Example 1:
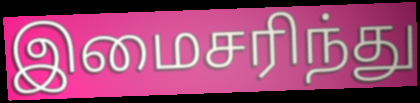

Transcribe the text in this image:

இமைசரிந்து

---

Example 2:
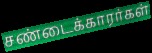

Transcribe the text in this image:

சண்டைக்காரர்கள்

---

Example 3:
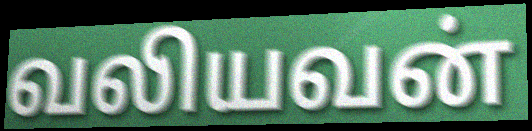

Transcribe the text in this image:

வலியவன்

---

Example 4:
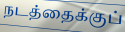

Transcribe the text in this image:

நடத்தைக்குப்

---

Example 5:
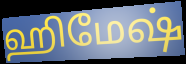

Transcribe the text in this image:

ஹிமேஷ்